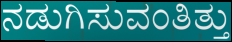
ನಡುಗಿಸುವಂತಿತ್ತು